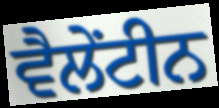
ਵੈਲੇਂਟੀਨ